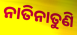
ନାତିନାତୁଣି